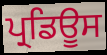
ਪ੍ਰਡਿਊਸ